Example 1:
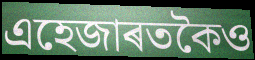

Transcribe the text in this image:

এহেজাৰতকৈও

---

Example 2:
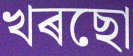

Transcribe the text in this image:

খৰছো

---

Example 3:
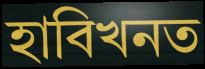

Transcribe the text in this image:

হাবিখনত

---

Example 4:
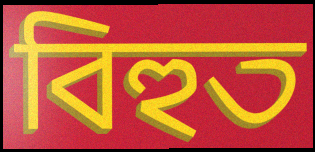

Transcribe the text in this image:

বিহুত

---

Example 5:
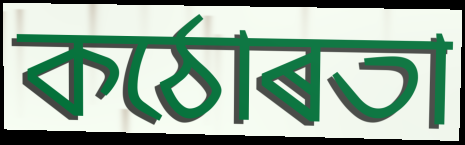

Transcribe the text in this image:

কঠোৰতা